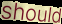
should